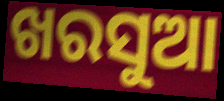
ଖରସୁଆ